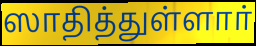
ஸாதித்துள்ளார்